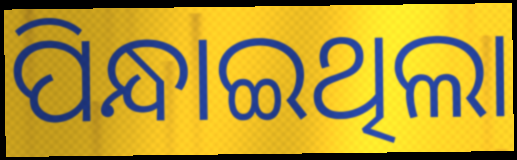
ପିନ୍ଧାଇଥିଲା